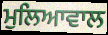
ਮੁਲਿਆਵਾਲ